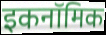
इकनॉमिक